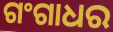
ଗଂଗାଧର